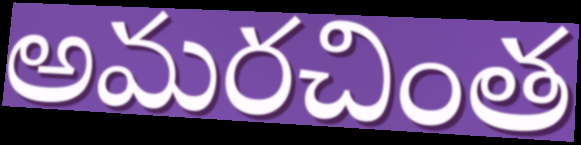
అమరచింత